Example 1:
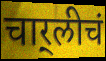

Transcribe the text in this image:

चार्लीचं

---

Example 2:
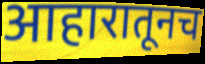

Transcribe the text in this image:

आहारातूनच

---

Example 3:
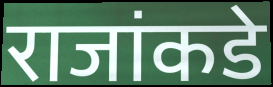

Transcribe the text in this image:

राजांकडे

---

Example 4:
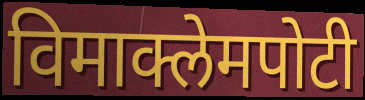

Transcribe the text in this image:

विमाक्लेमपोटी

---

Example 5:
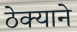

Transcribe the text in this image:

ठेक्याने